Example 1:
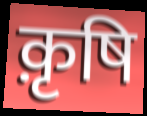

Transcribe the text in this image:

क़ृषि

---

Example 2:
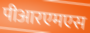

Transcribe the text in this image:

पीआरएमएस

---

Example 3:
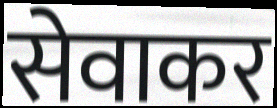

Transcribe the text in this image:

सेवाकर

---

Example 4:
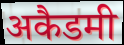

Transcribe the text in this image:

अकैडमी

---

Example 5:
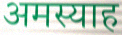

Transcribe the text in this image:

अमस्याह